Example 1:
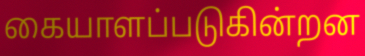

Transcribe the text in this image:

கையாளப்படுகின்றன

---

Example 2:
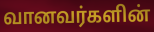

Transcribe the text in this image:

வானவர்களின்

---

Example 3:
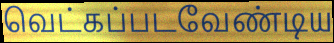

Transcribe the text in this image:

வெட்கப்படவேண்டிய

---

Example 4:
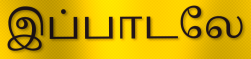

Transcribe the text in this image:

இப்பாடலே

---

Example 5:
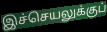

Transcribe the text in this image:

இச்செயலுக்குப்